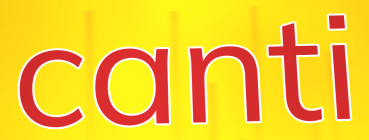
canti